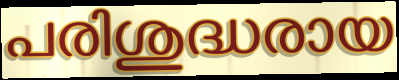
പരിശുദ്ധരായ